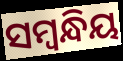
ସମ୍ଵନ୍ଧିୟ